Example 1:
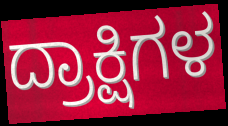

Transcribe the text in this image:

ದ್ರಾಕ್ಷಿಗಳ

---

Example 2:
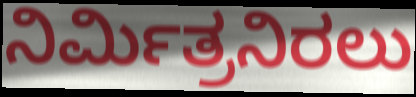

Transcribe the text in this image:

ನಿರ್ಮಿತ್ರನಿರಲು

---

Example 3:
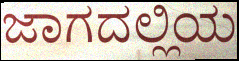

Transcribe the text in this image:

ಜಾಗದಲ್ಲಿಯ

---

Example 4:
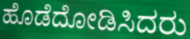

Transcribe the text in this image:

ಹೊಡೆದೋಡಿಸಿದರು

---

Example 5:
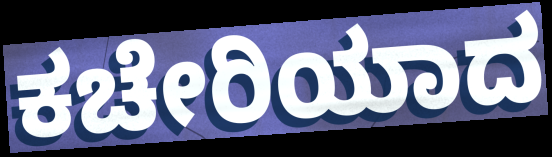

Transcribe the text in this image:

ಕಚೇರಿಯಾದ